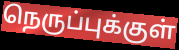
நெருப்புக்குள்